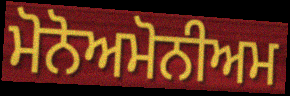
ਮੋਨੋਅਮੋਨੀਅਮ